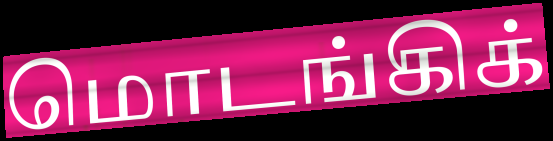
மொடங்கிக்